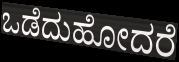
ಒಡೆದುಹೋದರೆ